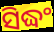
ସିଦ୍ଧଂ